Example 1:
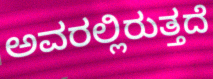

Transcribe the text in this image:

ಅವರಲ್ಲಿರುತ್ತದೆ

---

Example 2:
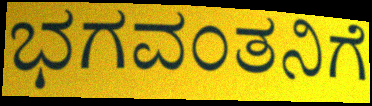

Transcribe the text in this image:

ಭಗವಂತನಿಗೆ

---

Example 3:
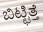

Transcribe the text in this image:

ಬಿಟ್ಟಿತ್ತೆ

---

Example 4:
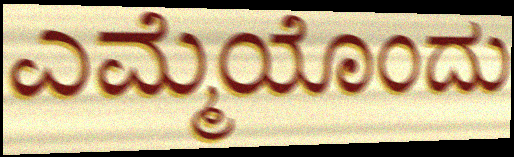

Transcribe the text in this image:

ಎಮ್ಮೆಯೊಂದು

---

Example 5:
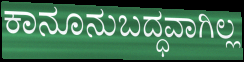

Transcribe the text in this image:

ಕಾನೂನುಬದ್ಧವಾಗಿಲ್ಲ